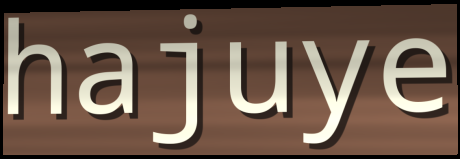
hajuye